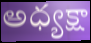
అధ్యక్షా